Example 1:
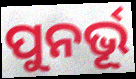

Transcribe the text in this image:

ପୁନର୍ଭୂ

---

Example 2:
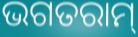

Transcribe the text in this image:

ଭଗତରାମ୍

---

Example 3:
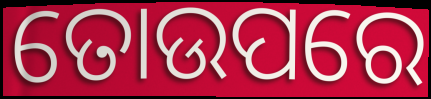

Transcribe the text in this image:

ତୋଉପରେ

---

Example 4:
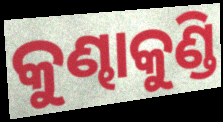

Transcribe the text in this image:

କୁଣ୍ଢାକୁଣ୍ଡି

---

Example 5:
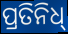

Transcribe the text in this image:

ପ୍ରତିନିଧ୍